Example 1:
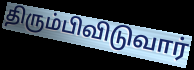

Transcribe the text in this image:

திரும்பிவிடுவார்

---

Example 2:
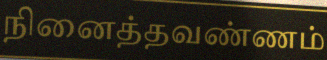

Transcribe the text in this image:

நினைத்தவண்ணம்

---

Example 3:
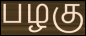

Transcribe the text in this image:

பழகு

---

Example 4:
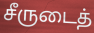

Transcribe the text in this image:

சீருடைத்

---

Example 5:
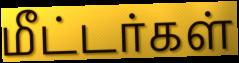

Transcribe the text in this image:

மீட்டர்கள்